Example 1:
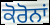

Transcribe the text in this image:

ਕੋਰੋਨਾਂ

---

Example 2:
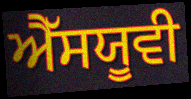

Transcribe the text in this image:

ਐੱਸਯੂਵੀ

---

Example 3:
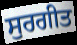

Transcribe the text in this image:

ਸੁਰਗੀਤ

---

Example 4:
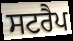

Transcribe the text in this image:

ਸਟਰੈਪ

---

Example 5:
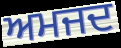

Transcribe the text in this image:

ਅਮਜਦ